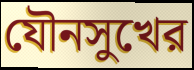
যৌনসুখের